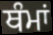
ਥੰਮਾਂ